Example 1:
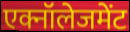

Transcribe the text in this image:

एक्नॉलेजमेंट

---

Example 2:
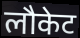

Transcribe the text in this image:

लौकेट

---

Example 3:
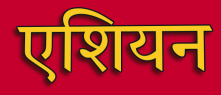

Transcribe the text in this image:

एशियन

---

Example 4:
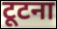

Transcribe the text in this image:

टूटना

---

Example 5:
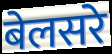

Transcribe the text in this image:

बेलसरे